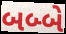
બબ્બે